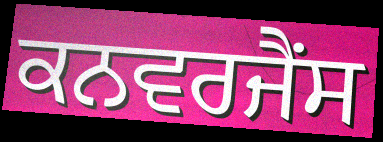
ਕਨਵਰਜੈਂਸ